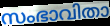
സംഭാവിതാ